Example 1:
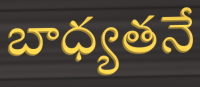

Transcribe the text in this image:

బాధ్యతనే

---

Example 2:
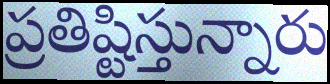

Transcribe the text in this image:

ప్రతిష్టిస్తున్నారు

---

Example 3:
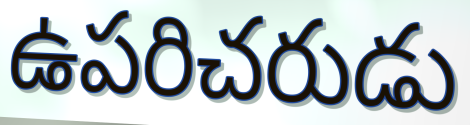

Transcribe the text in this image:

ఉపరిచరుడు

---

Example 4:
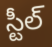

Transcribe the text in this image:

స్టీల్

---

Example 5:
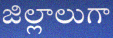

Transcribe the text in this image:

జిల్లాలుగా